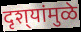
दृश्यांमुळे